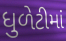
ધુળેટીમાં